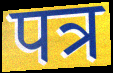
पत्र